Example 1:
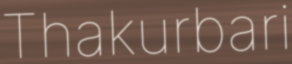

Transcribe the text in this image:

Thakurbari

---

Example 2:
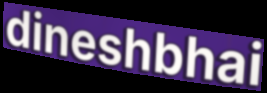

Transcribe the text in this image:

dineshbhai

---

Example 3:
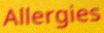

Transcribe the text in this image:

Allergies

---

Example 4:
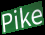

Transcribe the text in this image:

Pike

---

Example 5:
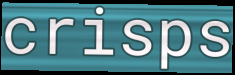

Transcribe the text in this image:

crisps